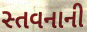
સ્તવનાની